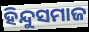
ହିନ୍ଦୁସମାଜ